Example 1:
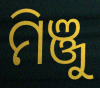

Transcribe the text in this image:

ମିଞ୍ଜୁ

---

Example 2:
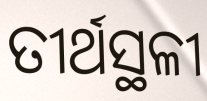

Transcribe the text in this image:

ତୀର୍ଥସ୍ଥଳୀ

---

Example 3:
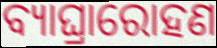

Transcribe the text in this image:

ବ୍ୟାଘ୍ରାରୋହଣ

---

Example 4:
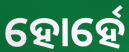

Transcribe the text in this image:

ହୋର୍ହେ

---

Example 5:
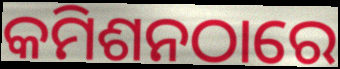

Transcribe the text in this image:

କମିଶନଠାରେ